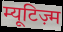
म्यूटिज़्म